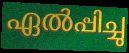
ഏൽപ്പിച്ചു